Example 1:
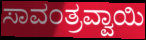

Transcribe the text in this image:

ಸಾವಂತ್ರವ್ವಾಯಿ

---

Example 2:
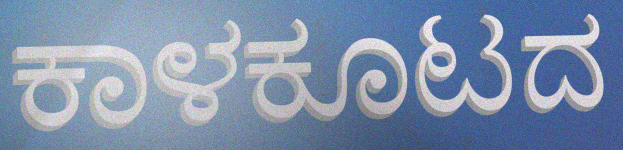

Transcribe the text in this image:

ಕಾಳಕೂಟದ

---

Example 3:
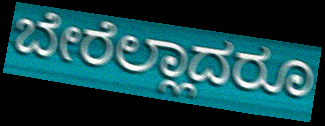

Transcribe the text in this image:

ಬೇರೆಲ್ಲಾದರೂ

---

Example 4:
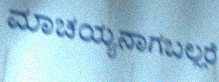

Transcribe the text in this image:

ಮಾಚಯ್ಯನಾಗಬಲ್ಲರೆ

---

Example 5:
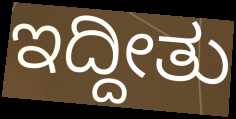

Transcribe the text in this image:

ಇದ್ದೀತು